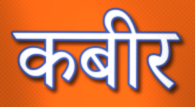
कबीर